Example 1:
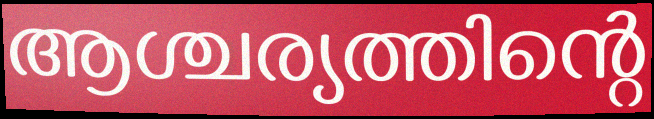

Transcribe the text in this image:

ആശ്ചര്യത്തിന്റെ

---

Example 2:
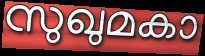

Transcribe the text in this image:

സുഖുമകാ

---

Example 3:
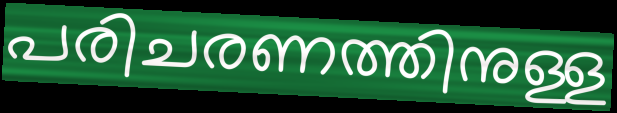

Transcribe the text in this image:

പരിചരണത്തിനുള്ള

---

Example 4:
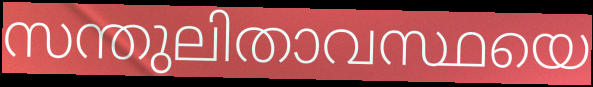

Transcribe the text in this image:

സന്തുലിതാവസ്ഥയെ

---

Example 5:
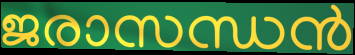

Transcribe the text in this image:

ജരാസന്ധൻ